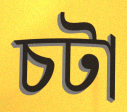
চটা